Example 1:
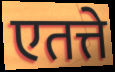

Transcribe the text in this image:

एतत्ते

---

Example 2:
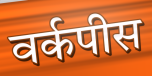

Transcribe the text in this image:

वर्कपीस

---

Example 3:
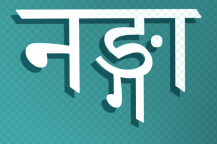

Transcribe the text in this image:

नङ्गा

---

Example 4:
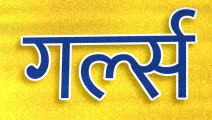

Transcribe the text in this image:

गर्ल्स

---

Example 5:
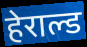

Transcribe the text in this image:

हेराल्ड